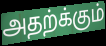
அதற்க்கும்